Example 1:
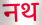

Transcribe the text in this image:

नथ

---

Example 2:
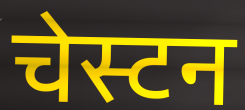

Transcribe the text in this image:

चेस्टन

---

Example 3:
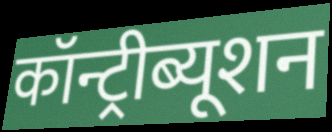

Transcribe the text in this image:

कॉन्ट्रीब्यूशन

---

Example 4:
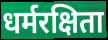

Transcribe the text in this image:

धर्मरक्षिता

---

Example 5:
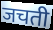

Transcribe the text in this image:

जचती